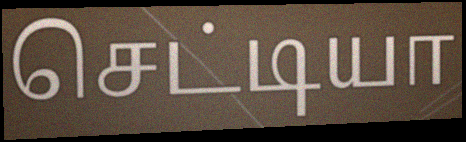
செட்டியா